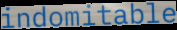
indomitable